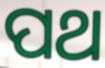
ପଥ